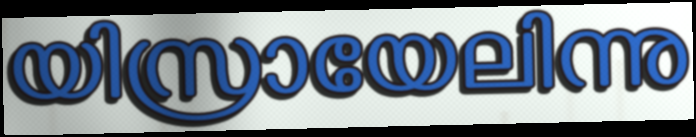
യിസ്രായേലിന്നു